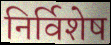
निर्विशेष